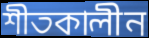
শীতকালীন